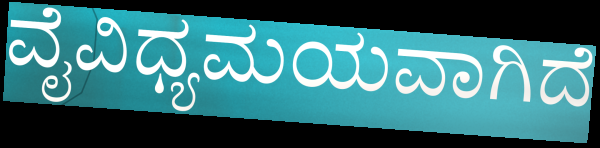
ವೈವಿಧ್ಯಮಯವಾಗಿದೆ